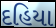
દહિયા